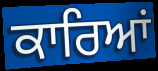
ਕਾਰਿਆਂ